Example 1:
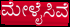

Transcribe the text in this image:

ಮೇಳೈಸಿವೆ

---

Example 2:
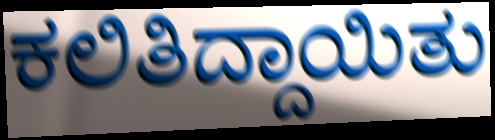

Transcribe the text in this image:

ಕಲಿತಿದ್ದಾಯಿತು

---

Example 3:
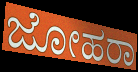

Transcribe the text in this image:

ಜೋಹರಾ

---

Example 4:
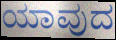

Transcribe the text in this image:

ಯಾವುದ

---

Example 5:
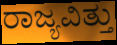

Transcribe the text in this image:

ರಾಜ್ಯವಿತ್ತು